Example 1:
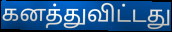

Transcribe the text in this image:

கனத்துவிட்டது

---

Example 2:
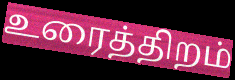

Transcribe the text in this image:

உரைத்திறம்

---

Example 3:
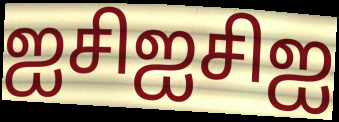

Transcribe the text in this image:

ஐசிஐசிஐ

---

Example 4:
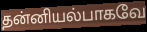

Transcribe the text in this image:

தன்னியல்பாகவே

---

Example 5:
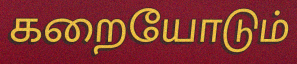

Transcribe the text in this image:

கறையோடும்